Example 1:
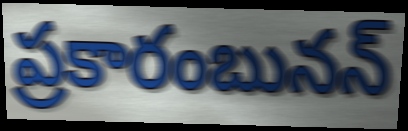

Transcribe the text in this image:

ప్రకారంబునన్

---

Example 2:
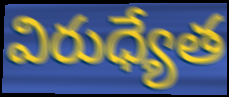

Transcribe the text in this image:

విరుధ్యేత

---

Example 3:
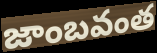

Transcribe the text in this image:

జాంబవంత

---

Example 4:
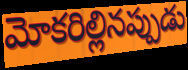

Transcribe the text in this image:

మోకరిల్లినప్పుడు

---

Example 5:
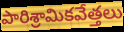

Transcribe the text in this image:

పారిశ్రామికవేత్తలు